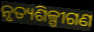
ନୃତ୍ୟଶିଳ୍ପୀଗଣ